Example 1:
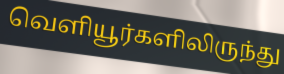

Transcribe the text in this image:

வெளியூர்களிலிருந்து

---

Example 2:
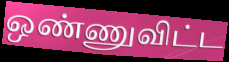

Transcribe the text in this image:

ஒண்ணுவிட்ட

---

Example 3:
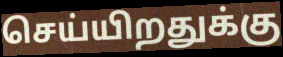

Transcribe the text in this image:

செய்யிறதுக்கு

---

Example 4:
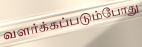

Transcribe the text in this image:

வளர்க்கப்படும்போது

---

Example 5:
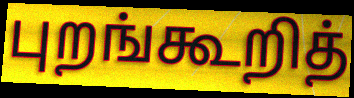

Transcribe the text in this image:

புறங்கூறித்